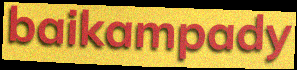
baikampady